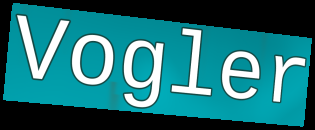
Vogler